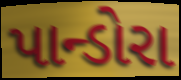
પાન્ડોરા